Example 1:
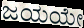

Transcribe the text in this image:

ಜಯಯೇ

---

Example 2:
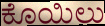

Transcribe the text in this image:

ಕೊಯಿಲು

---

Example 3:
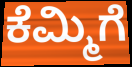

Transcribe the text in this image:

ಕೆಮ್ಮಿಗೆ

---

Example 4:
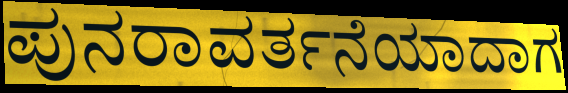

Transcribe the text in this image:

ಪುನರಾವರ್ತನೆಯಾದಾಗ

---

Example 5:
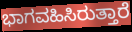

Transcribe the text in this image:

ಭಾಗವಹಿಸಿರುತ್ತಾರೆ